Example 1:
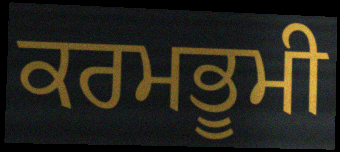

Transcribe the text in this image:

ਕਰਮਭੂਮੀ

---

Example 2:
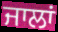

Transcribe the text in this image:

ਜਾਲਾਂ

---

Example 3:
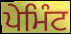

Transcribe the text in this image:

ਪੇਮਿੰਟ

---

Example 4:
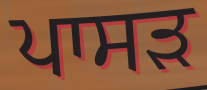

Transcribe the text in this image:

ਪਾਸੜ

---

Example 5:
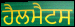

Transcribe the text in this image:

ਹੈਲਮੈਟਸ